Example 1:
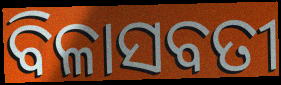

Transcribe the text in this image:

ବିଳାସବତୀ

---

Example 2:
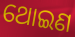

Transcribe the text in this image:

ଥୋଇଣ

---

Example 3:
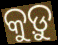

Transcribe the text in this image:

କୁଡ଼ୁ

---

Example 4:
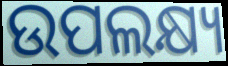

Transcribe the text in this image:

ଉପଲକ୍ଷ୍ୟ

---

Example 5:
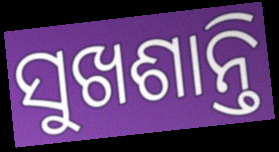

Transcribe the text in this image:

ସୁଖଶାନ୍ତି